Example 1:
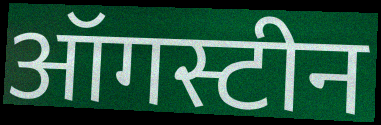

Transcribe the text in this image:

ऑगस्टीन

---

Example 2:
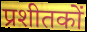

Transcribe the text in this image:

प्रशीतकों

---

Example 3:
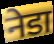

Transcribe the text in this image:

नेडा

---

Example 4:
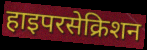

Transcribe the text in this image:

हाइपरसेक्रिशन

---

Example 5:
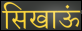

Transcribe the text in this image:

सिखाऊं